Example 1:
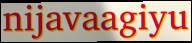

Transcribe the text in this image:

nijavaagiyu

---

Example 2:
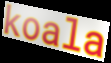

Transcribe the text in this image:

koala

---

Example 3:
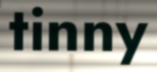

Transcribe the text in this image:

tinny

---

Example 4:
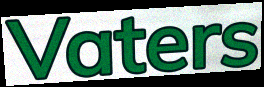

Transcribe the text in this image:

Vaters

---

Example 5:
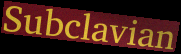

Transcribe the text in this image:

Subclavian